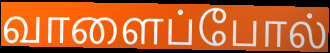
வாளைப்போல்